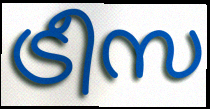
ട്രീസ